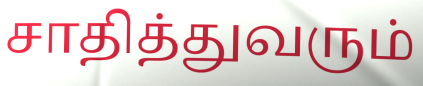
சாதித்துவரும்